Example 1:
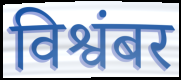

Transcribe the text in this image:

विश्वंबर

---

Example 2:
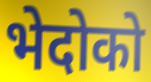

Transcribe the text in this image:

भेदोको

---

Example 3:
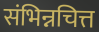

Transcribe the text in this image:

संभिन्नचित्त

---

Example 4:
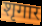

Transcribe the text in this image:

शृगार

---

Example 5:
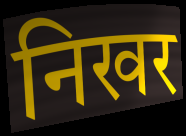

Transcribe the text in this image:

निखर